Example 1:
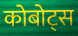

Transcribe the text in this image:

कोबोट्स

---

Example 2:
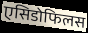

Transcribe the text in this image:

एसिडोफिलस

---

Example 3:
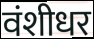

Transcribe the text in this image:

वंशीधर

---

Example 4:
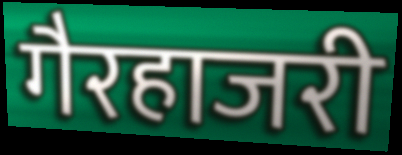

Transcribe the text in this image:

गैरहाजरी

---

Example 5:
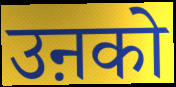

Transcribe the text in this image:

उऩको